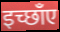
इच्छाँए